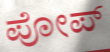
ಪೋಪ್